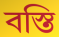
বস্তি